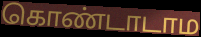
கொண்டாடாம